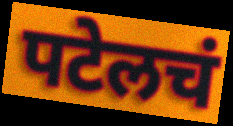
पटेलचं